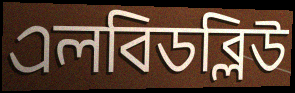
এলবিডব্লিউ